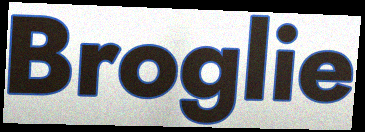
Broglie